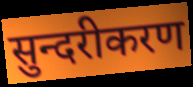
सुन्दरीकरण